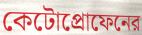
কেটোপ্রোফেনের